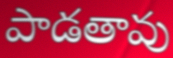
పాడతావు